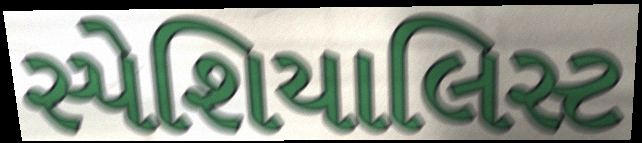
સ્પેશિયાલિસ્ટ